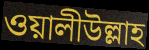
ওয়ালীউল্লাহ